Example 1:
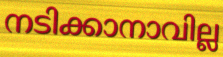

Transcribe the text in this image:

നടിക്കാനാവില്ല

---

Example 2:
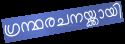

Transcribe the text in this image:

ഗ്രന്ഥരചനയ്ക്കായി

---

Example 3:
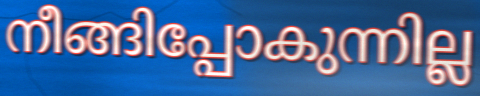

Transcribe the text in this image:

നീങ്ങിപ്പോകുന്നില്ല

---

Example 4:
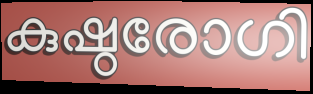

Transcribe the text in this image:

കുഷ്ഠരോഗി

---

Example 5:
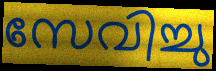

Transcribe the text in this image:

സേവിച്ചു